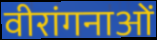
वीरांगनाओं